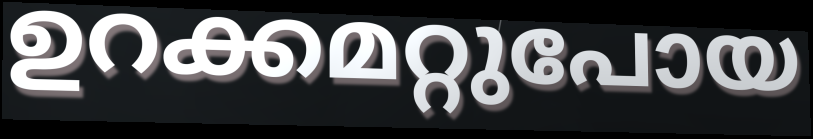
ഉറക്കമറ്റുപോയ